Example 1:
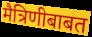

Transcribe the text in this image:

मैत्रिणीबाबत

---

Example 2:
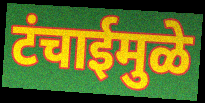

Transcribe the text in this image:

टंचाईमुळे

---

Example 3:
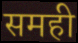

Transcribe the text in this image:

समही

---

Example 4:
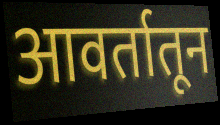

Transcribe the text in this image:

आवर्तातून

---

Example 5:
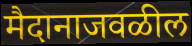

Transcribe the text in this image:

मैदानाजवळील